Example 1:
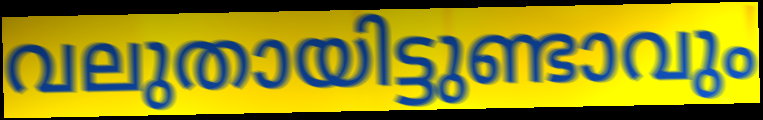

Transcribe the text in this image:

വലുതായിട്ടുണ്ടാവും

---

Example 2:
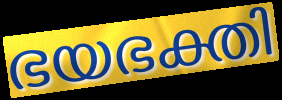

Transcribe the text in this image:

ഭയഭക്തി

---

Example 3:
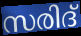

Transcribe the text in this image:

സരിദ്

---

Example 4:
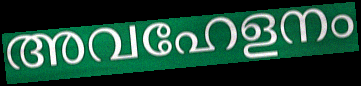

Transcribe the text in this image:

അവഹേളനം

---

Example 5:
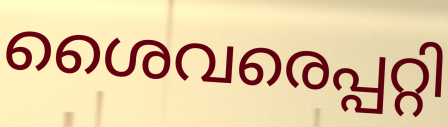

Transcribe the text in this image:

ശൈവരെപ്പറ്റി